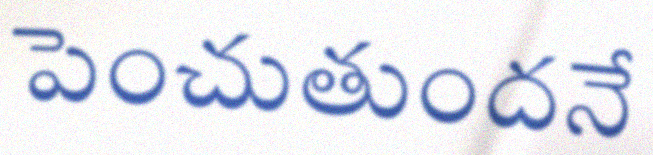
పెంచుతుందనే